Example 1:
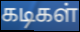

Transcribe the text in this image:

கடிகள்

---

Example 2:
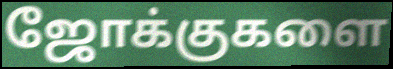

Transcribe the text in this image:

ஜோக்குகளை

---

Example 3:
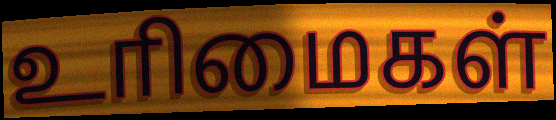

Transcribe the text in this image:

உரிமைகள்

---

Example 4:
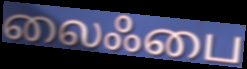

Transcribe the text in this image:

லைஃபை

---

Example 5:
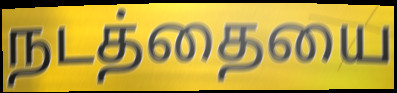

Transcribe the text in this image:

நடத்தையை